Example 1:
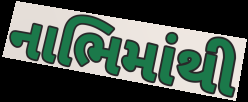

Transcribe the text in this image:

નાભિમાંથી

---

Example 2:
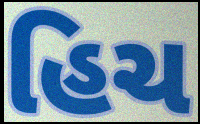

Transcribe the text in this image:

હિચ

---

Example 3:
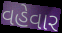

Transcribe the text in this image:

વહેવાર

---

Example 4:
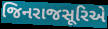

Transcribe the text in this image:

જિનરાજસૂરિએ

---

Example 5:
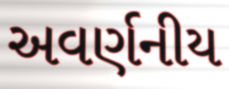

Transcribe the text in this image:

અવર્ણનીય